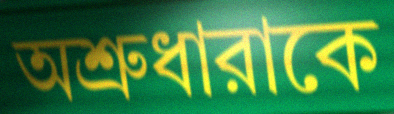
অশ্রুধারাকে